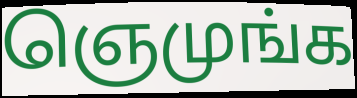
ஞெமுங்க